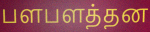
பளபளத்தன